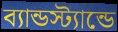
ব্যান্ডস্ট্যান্ডে